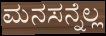
ಮನಸನ್ನೆಲ್ಲ